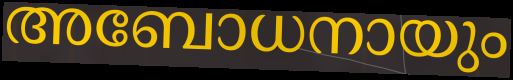
അബോധനായും